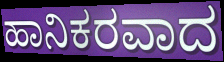
ಹಾನಿಕರವಾದ